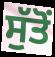
ਸੁੱਤੋਂ